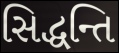
સિદ્ધન્તિ